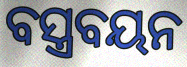
ବସ୍ତ୍ରବୟନ